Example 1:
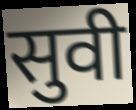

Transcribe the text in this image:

सुवी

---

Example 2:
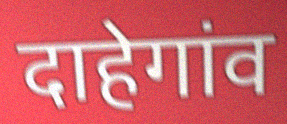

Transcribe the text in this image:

दाहेगांव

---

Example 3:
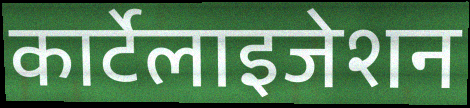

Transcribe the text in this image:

कार्टेलाइजेशन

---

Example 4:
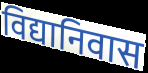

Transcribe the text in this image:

विद्यानिवास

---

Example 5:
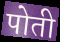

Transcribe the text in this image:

पोती